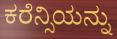
ಕರೆನ್ಸಿಯನ್ನು